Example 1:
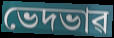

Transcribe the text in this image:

ভেদভাৱ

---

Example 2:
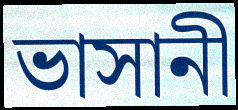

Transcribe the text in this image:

ভাসানী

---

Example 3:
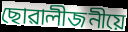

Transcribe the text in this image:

ছোৱালীজনীয়ে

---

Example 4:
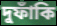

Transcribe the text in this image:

দুফাঁকি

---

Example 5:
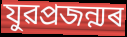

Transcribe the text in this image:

যুৱপ্ৰজন্মৰ